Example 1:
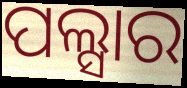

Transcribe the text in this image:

ପଲ୍ସାର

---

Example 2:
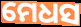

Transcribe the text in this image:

ମେଧସ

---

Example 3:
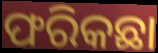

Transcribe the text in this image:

ଫରିକଛା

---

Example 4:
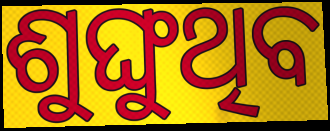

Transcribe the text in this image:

ଶୁଙ୍ଘୁଥିବ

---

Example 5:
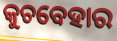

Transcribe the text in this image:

କୁଚବେହାର